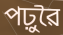
পঢ়ুৱৈ